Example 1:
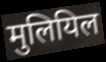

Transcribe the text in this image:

मुलियिल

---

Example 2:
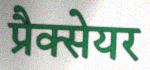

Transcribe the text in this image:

प्रैक्सेयर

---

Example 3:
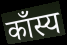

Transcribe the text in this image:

काँस्य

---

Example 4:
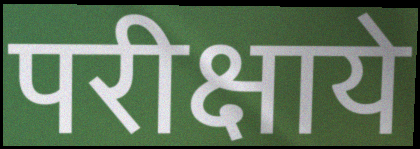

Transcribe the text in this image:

परीक्षाये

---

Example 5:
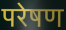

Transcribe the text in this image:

परेषण